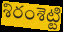
శిరంశెట్టి